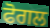
ਫੋਗਲ